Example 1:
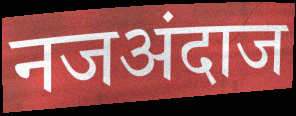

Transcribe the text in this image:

नजअंदाज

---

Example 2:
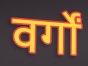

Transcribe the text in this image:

वर्गों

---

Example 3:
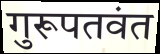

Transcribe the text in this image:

गुरूपतवंत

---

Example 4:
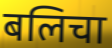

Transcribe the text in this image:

बलिचा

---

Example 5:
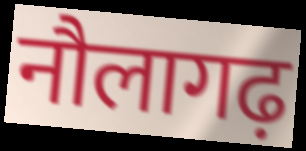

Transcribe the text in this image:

नौलागढ़